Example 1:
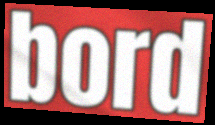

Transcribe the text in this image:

bord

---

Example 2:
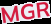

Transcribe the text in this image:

MGR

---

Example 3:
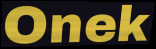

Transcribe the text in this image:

Onek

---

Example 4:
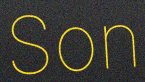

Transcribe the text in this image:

Son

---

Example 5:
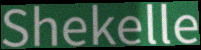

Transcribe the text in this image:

Shekelle